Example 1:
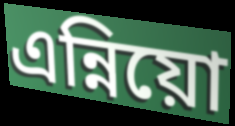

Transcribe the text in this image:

এন্নিয়ো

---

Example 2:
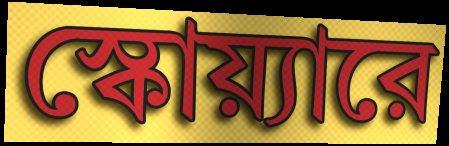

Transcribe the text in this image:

স্কোয়্যারে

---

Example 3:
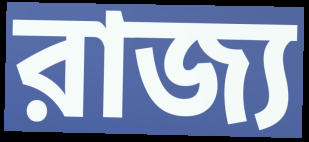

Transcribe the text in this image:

রাজ্য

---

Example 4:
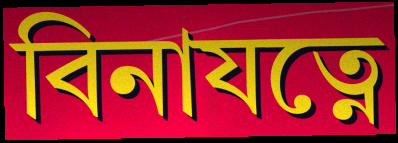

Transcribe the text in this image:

বিনাযত্নে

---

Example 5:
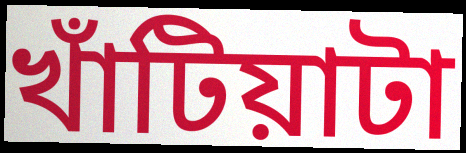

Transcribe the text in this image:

খাঁটিয়াটা